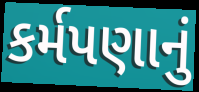
કર્મપણાનું